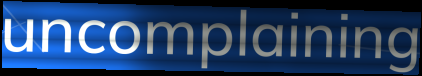
uncomplaining